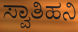
ಸ್ವಾತಿಹನಿ